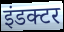
इंडक्टर